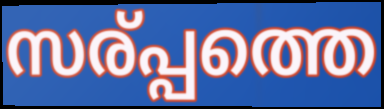
സര്പ്പത്തെ